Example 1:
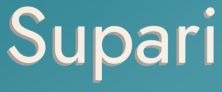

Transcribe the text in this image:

Supari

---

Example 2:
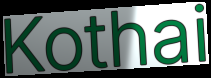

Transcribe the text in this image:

Kothai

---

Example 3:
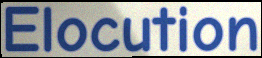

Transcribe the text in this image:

Elocution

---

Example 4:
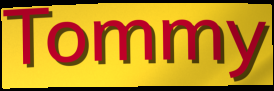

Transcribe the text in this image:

Tommy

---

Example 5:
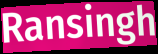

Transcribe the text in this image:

Ransingh